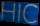
HIC